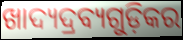
ଖାଦ୍ୟଦ୍ରବ୍ୟଗୁଡ଼ିକର